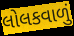
લોલકવાળું